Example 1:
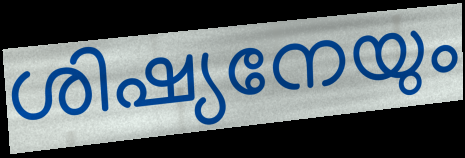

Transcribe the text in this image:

ശിഷ്യനേയും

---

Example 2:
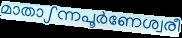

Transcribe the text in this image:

മാതാഽന്നപൂർണേശ്വരീ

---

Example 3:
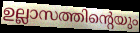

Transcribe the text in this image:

ഉല്ലാസത്തിന്റെയും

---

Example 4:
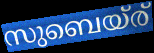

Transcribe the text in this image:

സുബെയ്ര്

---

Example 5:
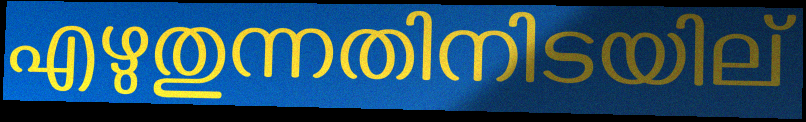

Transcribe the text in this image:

എഴുതുന്നതിനിടയില്